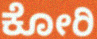
ಕೋರಿ